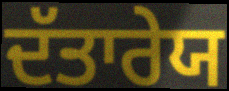
ਦੱਤਾਰੇਯ